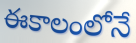
ఈకాలంలోనే